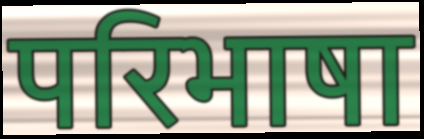
परिभाषा